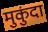
मुकुंदा